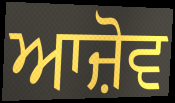
ਆਜ਼ੋਵ